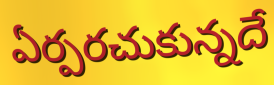
ఏర్పరచుకున్నదే